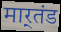
मार्तंड